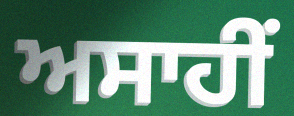
ਅਸਾਹੀਂ